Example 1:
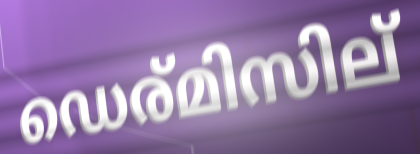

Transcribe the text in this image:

ഡെര്മിസില്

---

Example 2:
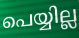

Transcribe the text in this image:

പെയ്യില്ല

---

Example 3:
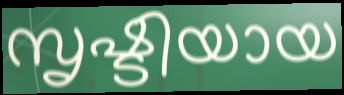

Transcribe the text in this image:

സൃഷ്ടിയായ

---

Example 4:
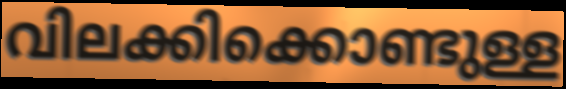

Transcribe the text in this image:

വിലക്കിക്കൊണ്ടുള്ള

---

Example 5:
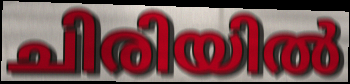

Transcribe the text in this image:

ചിരിയിൽ